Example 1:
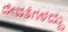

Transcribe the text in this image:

ದೇವತೆಗಳದ್ದು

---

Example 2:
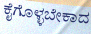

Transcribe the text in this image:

ಕೈಗೊಳ್ಳಬೇಕಾದ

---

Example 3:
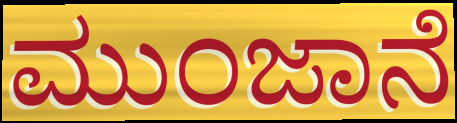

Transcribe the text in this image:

ಮುಂಜಾನೆ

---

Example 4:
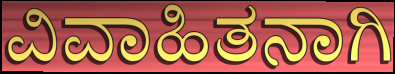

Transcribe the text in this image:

ವಿವಾಹಿತನಾಗಿ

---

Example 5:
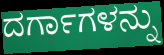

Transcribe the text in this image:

ದರ್ಗಾಗಳನ್ನು